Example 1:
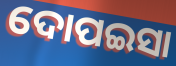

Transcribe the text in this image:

ଦୋପଇସା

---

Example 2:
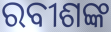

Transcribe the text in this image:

ରବୀଶଙ୍କ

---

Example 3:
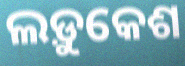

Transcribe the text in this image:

ଲଡ଼ୁକେଶ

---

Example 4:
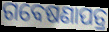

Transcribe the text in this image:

ଗବେଷଣାପତ୍ର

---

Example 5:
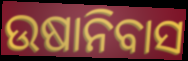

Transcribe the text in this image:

ଉଷାନିବାସ